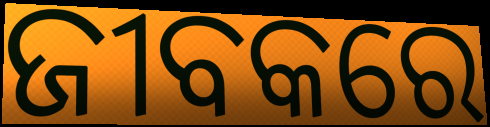
ଜୀବକରେ